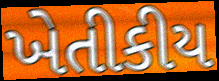
ખેતીકીય